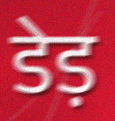
डेड़